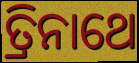
ତ୍ରିନାଥେ